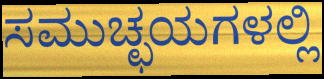
ಸಮುಚ್ಛಯಗಳಲ್ಲಿ